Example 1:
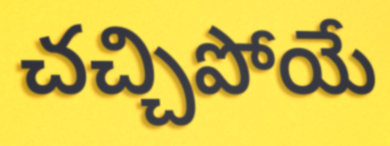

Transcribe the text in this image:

చచ్చిపోయే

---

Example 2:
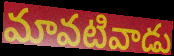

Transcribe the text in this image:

మావటివాడు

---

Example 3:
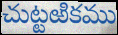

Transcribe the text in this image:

చుట్టఱికము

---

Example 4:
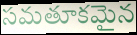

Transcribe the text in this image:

సమతూకమైన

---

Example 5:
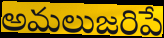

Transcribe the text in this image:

అమలుజరిపే